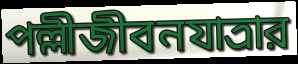
পল্লীজীবনযাত্রার